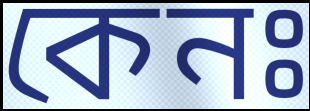
কেনঃ